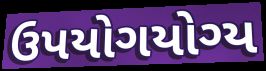
ઉપયોગયોગ્ય